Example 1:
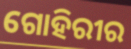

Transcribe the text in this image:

ଗୋହିରୀର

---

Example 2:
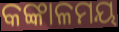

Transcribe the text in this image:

କଙ୍କାଳମୟ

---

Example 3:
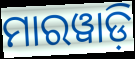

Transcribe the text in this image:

ମାରୱାଡ଼ି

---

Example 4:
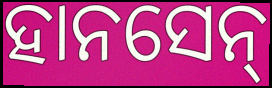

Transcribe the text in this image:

ହାନସେନ୍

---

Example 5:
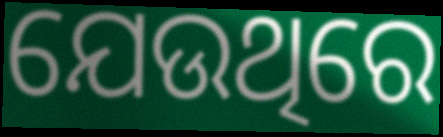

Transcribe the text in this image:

ଯେଉଥିରେ